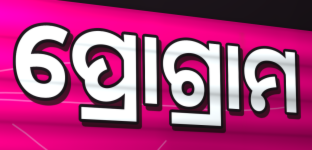
ପ୍ରୋଗ୍ରାମ